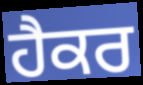
ਹੈਕਰ